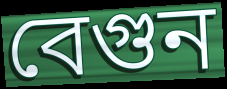
বেগুন